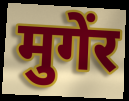
मुगेंर